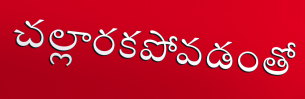
చల్లారకపోవడంతో